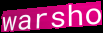
warsho